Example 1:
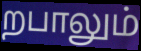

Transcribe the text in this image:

றபாலும்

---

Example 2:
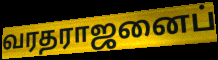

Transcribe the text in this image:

வரதராஜனைப்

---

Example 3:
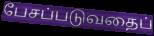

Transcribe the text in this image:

பேசப்படுவதைப்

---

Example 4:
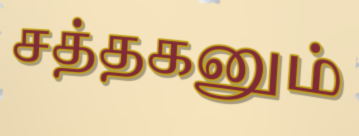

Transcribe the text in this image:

சத்தகனும்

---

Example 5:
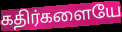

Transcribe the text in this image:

கதிர்களையே